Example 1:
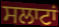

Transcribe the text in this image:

ਸਲਾਟਾਂ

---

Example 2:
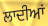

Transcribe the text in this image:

ਲਾਦੀਆਂ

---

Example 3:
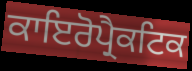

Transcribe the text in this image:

ਕਾਇਰੋਪ੍ਰੈਕਟਿਕ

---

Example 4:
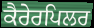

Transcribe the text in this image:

ਕੈਰੇਰਪਿਲਰ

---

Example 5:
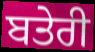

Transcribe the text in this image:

ਬਤੇਰੀ